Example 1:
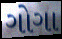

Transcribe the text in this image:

ગોગા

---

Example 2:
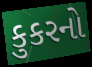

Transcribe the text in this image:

કુકરનો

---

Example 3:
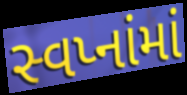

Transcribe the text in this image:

સ્વપ્નાંમાં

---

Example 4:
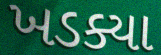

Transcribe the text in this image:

ખડક્યા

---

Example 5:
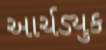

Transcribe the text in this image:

આર્ચડ્યુક